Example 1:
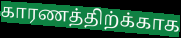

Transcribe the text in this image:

காரணத்திற்க்காக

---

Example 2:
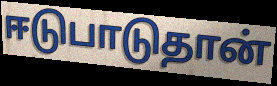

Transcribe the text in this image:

ஈடுபாடுதான்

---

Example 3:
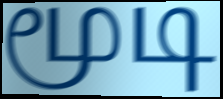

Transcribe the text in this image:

மூடி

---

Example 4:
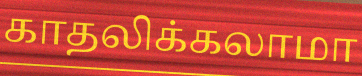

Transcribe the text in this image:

காதலிக்கலாமா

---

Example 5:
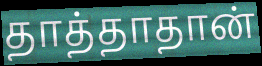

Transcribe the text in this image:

தாத்தாதான்